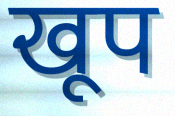
खूप